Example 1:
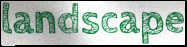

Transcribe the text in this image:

landscape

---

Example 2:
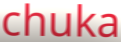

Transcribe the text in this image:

chuka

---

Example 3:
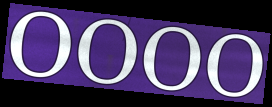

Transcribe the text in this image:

OOOO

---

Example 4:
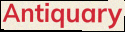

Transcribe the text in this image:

Antiquary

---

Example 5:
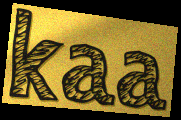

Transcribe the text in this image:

kaa